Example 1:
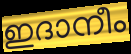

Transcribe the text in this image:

ഇദാനീം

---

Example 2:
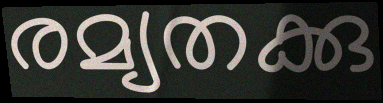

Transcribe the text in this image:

രമ്യതക്കു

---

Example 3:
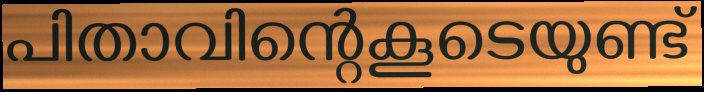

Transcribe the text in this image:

പിതാവിന്റെകൂടെയുണ്ട്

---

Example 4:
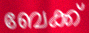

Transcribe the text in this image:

ബേക്ക്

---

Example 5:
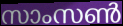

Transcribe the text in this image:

സാംസൺ